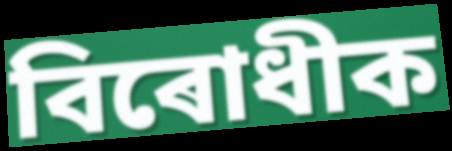
বিৰোধীক